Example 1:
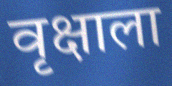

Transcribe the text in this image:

वृक्षाला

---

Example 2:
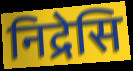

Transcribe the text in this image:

निद्रेसि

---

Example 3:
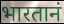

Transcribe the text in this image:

भारतानं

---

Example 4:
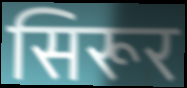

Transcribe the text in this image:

सिरूर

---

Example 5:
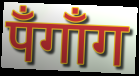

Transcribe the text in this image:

पँगाँग